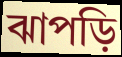
ঝাপড়ি